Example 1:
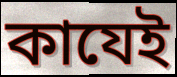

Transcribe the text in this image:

কাযেই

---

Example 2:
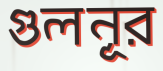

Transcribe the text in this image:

গুলনূর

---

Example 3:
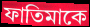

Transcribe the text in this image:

ফাতিমাকে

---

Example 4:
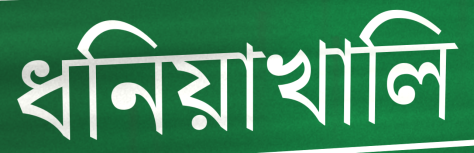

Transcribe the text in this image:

ধনিয়াখালি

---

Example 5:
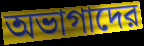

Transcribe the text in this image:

অভাগাদের